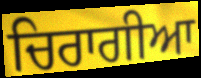
ਚਿਰਾਗੀਆ